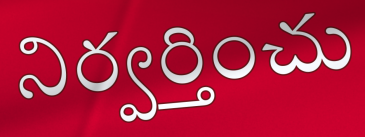
నిర్వర్తించు